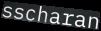
sscharan